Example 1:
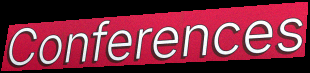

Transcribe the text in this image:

Conferences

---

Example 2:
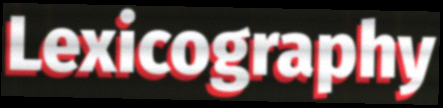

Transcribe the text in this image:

Lexicography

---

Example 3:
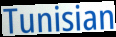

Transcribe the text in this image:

Tunisian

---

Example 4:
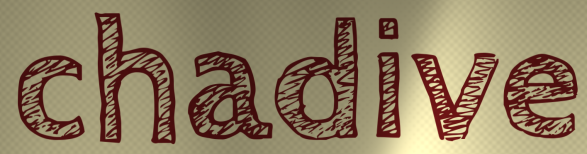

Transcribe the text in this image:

chadive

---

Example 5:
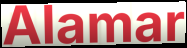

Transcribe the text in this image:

Alamar